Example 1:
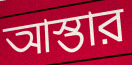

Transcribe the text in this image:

আস্তার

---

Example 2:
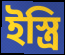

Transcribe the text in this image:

ইস্ত্রি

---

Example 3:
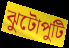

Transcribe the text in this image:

ঝুটোপুটি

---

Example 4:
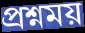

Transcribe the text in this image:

প্রশ্নময়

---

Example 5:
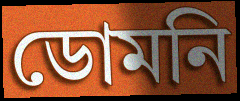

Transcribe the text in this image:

ডোমনি